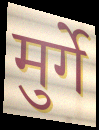
मुर्गे